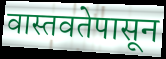
वास्तवतेपासून